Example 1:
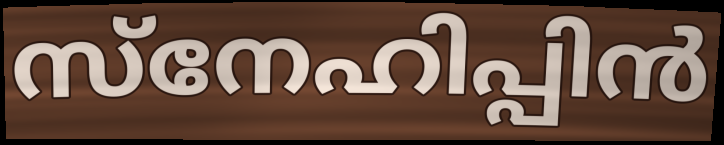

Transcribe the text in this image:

സ്നേഹിപ്പിൻ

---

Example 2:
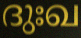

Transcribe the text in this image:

ദുഃഖ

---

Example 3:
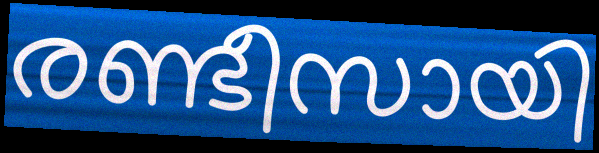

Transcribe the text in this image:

രണ്ടീസായി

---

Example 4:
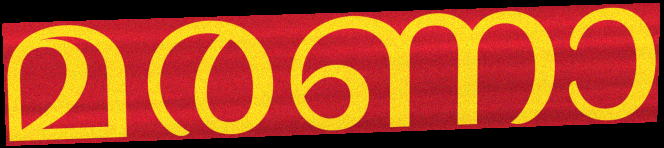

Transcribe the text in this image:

മരണാ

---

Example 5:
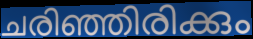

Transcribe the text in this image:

ചരിഞ്ഞിരിക്കും